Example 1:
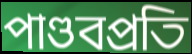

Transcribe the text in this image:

পাণ্ডবপ্রতি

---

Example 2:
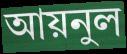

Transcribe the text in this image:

আয়নুল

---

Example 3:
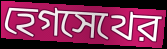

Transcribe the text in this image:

হেগসেথের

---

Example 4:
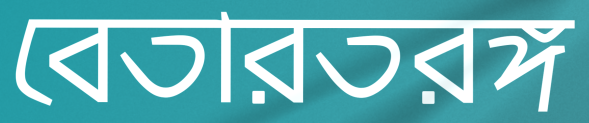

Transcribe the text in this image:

বেতারতরঙ্গ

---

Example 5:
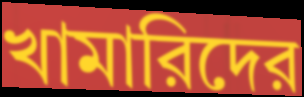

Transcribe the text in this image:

খামারিদের